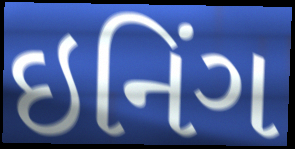
ઇનિંગ